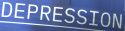
DEPRESSION